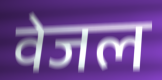
वेजल